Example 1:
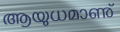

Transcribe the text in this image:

ആയുധമാണു്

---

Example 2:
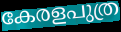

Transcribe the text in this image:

കേരളപുത്ര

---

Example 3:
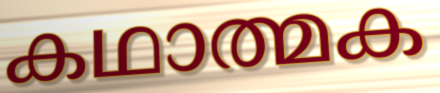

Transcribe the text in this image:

കഥാത്മക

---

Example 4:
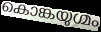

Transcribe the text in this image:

കൊങ്കയുഗ്മം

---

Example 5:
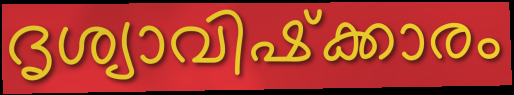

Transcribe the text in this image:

ദൃശ്യാവിഷ്‌ക്കാരം